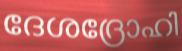
ദേശദ്രോഹി